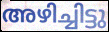
അഴിച്ചിട്ടു